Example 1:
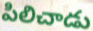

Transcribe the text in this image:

పిలిచాడు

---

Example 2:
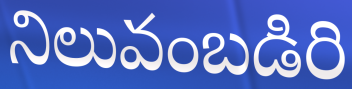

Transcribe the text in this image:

నిలువంబడిరి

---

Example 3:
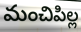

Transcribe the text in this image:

మంచిపిల్ల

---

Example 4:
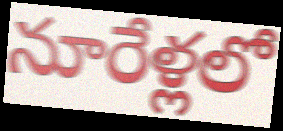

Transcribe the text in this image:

నూరేళ్లలో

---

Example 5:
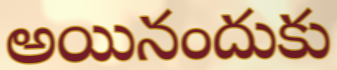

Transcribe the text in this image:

అయినందుకు